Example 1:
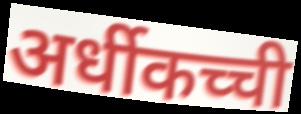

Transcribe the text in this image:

अर्धीकच्ची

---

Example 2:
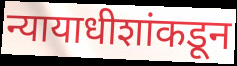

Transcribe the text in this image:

न्यायाधीशांकडून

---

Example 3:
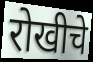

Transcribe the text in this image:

रोखीचे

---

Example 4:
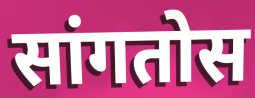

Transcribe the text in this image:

सांगतोस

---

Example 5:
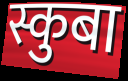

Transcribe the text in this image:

स्कुबा